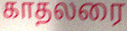
காதலரை